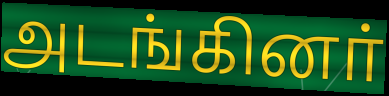
அடங்கினர்